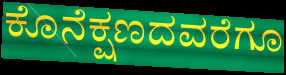
ಕೊನೆಕ್ಷಣದವರೆಗೂ